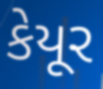
કેયૂર